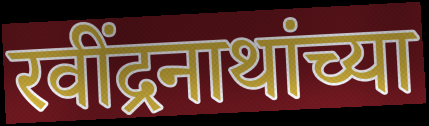
रवींद्रनाथांच्या